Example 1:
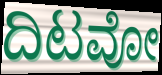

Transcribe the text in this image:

ದಿಟವೋ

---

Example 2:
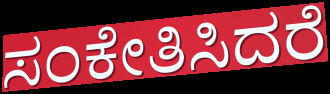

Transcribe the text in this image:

ಸಂಕೇತಿಸಿದರೆ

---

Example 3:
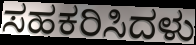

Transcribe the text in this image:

ಸಹಕರಿಸಿದಳು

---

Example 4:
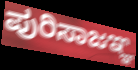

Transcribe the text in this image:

ಪುರಿಸಾಜಞ್ಞ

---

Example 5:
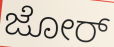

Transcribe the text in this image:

ಜೋರ್